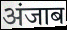
अंजाब